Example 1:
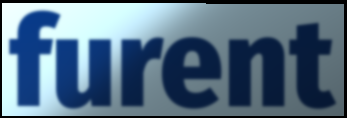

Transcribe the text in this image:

furent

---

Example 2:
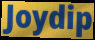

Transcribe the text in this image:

Joydip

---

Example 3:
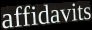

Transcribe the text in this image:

affidavits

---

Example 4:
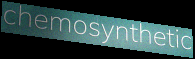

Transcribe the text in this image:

chemosynthetic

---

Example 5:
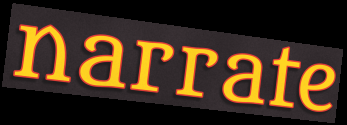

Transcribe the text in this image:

narrate